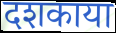
दशकाया